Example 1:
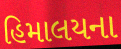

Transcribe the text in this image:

હિમાલયના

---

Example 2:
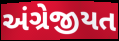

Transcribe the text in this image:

અંગ્રેજીયત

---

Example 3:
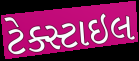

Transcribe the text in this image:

ટેક્સ્ટાઇલ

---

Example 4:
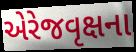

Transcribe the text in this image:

એરેજવૃક્ષના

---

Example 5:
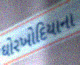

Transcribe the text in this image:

ઘોરખોદિયાના